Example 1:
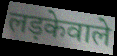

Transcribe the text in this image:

लड़केवाले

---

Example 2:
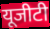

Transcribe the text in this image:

यूजीटी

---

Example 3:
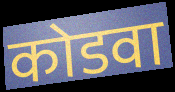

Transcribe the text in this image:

कोडवा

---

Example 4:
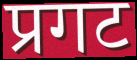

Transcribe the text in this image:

प्रगट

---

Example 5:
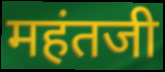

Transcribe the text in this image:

महंतजी